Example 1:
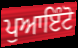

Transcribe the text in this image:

ਪੁਆਇੰਟੋ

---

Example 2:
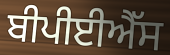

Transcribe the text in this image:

ਬੀਪੀਈਐੱਸ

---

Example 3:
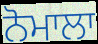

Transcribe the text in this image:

ਨੋਮਾਲਾ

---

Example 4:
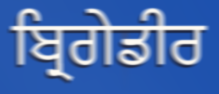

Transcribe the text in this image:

ਬ੍ਰਿਗੇਡੀਰ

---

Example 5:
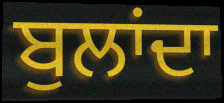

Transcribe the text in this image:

ਬੁਲਾਂਦਾ